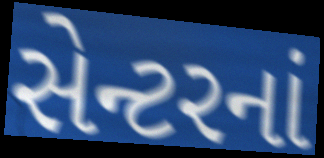
સેન્ટરનાં